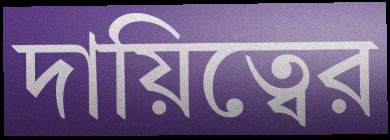
দায়িত্বের